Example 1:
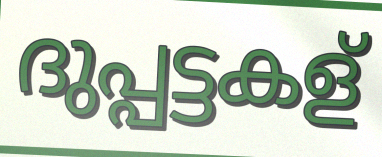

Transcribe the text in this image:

ദുപ്പട്ടകള്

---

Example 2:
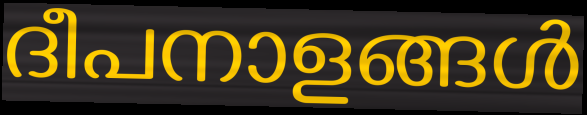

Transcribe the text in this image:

ദീപനാളങ്ങൾ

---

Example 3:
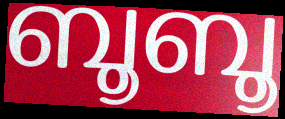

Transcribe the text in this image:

ബൂബൂ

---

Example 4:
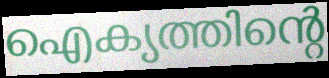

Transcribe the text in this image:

ഐക്യത്തിന്റെ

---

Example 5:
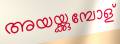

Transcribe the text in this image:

അയയ്ക്കുമ്പോള്